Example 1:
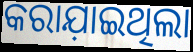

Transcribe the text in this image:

କରାଯ଼ାଇଥିଲା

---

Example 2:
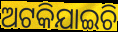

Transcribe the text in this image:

ଅଟକିଯାଇଚି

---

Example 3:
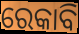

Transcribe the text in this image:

ରେକାବି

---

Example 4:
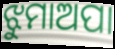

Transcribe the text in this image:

ଝୁମାଅପା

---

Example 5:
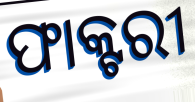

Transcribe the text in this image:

ଫାକ୍ଟରୀ